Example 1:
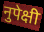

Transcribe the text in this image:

नुपेक्षी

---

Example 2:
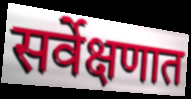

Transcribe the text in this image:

सर्वेक्षणात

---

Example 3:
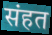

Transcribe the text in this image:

संहत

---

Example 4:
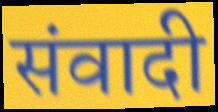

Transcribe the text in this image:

संवादी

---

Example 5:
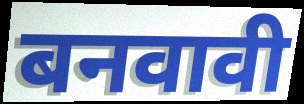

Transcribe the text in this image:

बनवावी